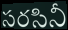
సరసినీ